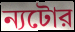
ন্যটোর